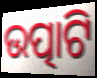
ଉତ୍ପାଟି